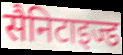
सैनिटाइज्ड